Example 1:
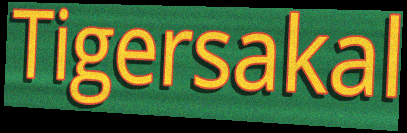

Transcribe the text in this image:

Tigersakal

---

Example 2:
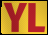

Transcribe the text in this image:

YL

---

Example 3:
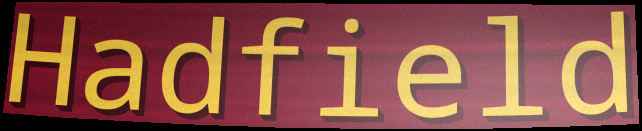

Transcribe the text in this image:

Hadfield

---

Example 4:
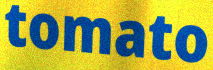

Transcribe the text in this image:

tomato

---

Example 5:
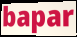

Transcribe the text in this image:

bapar